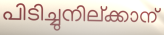
പിടിച്ചുനില്ക്കാന്